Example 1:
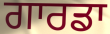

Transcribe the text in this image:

ਗਾਰਡਾ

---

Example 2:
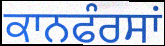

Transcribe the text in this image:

ਕਾਨਫੰਰਸਾਂ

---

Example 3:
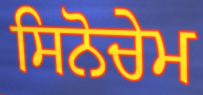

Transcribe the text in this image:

ਸਿਨੋਚੇਮ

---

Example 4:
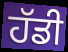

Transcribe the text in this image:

ਹੱਡੀ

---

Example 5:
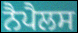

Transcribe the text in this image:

ਨੈਪੈਲਸ